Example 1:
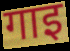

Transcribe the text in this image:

गाइ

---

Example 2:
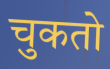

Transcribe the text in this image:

चुकतो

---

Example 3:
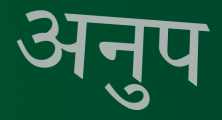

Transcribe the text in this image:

अनुप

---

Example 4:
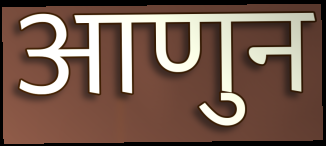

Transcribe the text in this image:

आणुन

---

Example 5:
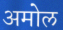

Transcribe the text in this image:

अमोल